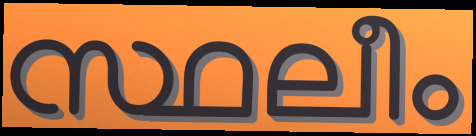
സ്ഥലീം